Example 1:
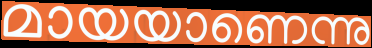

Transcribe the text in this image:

മായയാണെന്നു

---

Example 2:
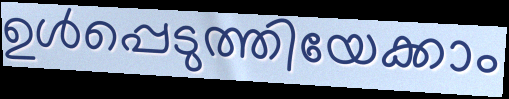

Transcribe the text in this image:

ഉൾപ്പെടുത്തിയേക്കാം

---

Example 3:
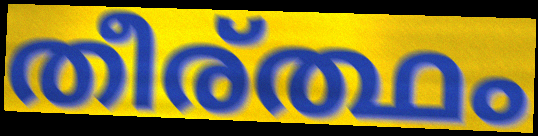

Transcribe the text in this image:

തീര്ത്ഥം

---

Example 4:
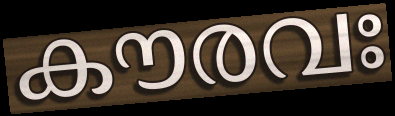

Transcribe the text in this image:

കൗരവഃ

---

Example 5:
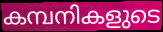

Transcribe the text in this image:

കമ്പനികളുടെ